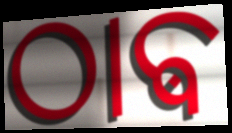
ଠାଵ